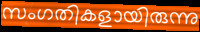
സംഗതികളായിരുന്നു